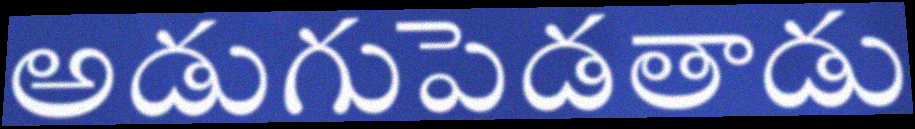
అడుగుపెడతాడు